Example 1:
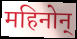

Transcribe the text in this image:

महिनोन्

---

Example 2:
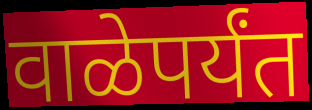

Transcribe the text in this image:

वाळेपर्यंत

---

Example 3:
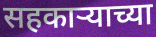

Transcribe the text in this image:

सहकार्‍याच्या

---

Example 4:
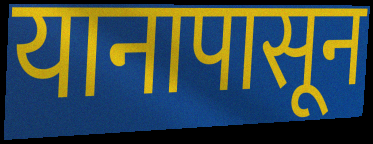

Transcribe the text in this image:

यानापासून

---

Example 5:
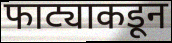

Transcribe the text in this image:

फाट्याकडून